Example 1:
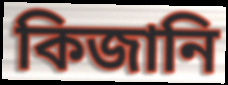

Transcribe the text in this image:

কিজানি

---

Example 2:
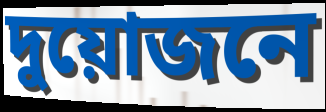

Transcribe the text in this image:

দুয়োজনে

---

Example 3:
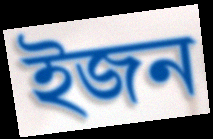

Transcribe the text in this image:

ইজন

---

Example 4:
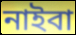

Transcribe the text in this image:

নাইবা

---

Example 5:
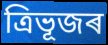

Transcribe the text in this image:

ত্ৰিভূজৰ